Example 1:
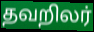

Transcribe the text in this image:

தவறிலர்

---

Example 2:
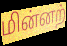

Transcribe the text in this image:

மின்னற்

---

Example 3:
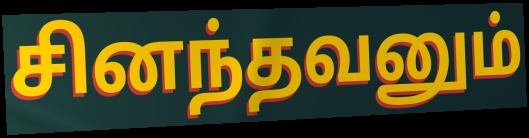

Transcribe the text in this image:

சினந்தவனும்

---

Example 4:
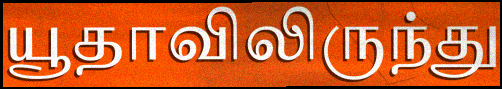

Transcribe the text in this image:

யூதாவிலிருந்து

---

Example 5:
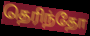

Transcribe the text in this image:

தெரிந்தோ